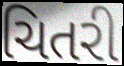
ચિતરી